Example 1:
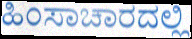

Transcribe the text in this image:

ಹಿಂಸಾಚಾರದಲ್ಲಿ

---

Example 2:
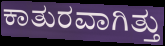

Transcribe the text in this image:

ಕಾತುರವಾಗಿತ್ತು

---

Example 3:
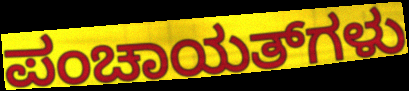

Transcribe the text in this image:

ಪಂಚಾಯತ್‌ಗಳು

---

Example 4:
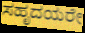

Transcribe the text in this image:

ಸಹೃದಯರೇ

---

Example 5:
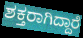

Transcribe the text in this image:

ಶಕ್ತರಾಗಿದ್ದಾರೆ